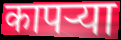
कापर्‍या